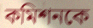
কমিশনকে